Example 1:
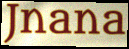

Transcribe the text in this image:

Jnana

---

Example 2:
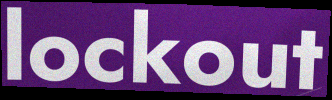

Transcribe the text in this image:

lockout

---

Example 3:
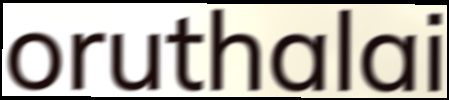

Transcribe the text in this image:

oruthalai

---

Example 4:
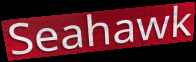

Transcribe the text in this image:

Seahawk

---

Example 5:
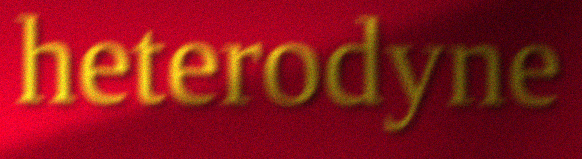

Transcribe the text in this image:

heterodyne